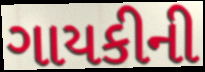
ગાયકીની